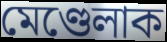
মেণ্ডেলাক